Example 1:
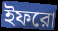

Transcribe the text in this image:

ইফরো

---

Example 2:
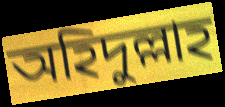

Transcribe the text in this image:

অহিদুল্লাহ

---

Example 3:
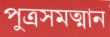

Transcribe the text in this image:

পুত্রসমত্মান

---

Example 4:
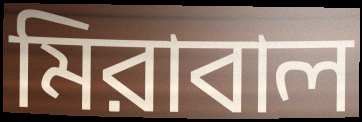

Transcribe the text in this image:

মিরাবাল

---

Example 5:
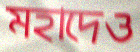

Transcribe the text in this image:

মহাদেও